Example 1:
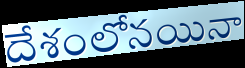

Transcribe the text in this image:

దేశంలోనయినా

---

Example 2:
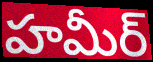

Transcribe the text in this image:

హమీర్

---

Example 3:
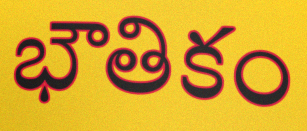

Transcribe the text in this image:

భౌతికం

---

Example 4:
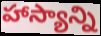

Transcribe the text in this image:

హాస్యాన్ని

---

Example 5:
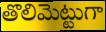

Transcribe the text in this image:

తొలిమెట్టుగా